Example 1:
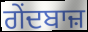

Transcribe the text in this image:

ਗੇਂਦਬਾਜ਼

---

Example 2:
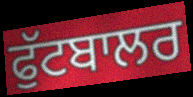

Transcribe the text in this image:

ਫੁੱਟਬਾਲਰ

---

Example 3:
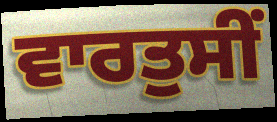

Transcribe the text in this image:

ਵਾਰਤੁਸੀਂ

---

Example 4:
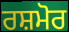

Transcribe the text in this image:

ਰਸ਼ਮੋਰ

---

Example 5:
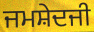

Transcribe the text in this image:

ਜਮਸ਼ੇਦਜੀ